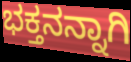
ಭಕ್ತನನ್ನಾಗಿ